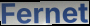
Fernet